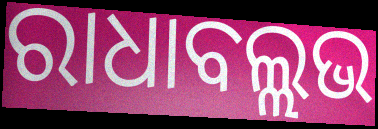
ରାଧାବଲ୍ଲଭ